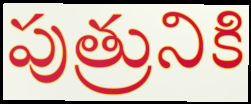
పుత్రునికి